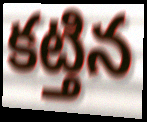
కట్తిన